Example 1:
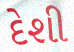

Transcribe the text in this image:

દેશી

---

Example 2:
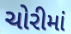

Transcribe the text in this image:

ચોરીમાં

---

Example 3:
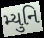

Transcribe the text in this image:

મ્યુનિ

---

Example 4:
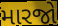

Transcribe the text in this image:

મારજો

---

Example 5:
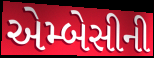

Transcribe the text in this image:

એમ્બેસીની